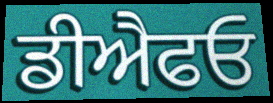
ਡੀਐਫਓ